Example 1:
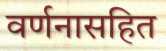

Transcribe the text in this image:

वर्णनासहित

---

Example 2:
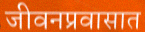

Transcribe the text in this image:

जीवनप्रवासात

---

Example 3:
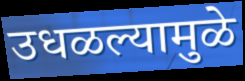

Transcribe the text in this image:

उधळल्यामुळे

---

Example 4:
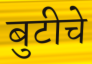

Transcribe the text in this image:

बुटीचे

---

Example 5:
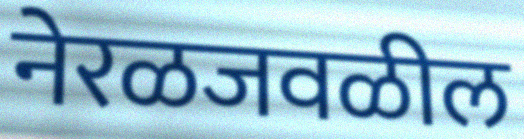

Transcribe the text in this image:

नेरळजवळील